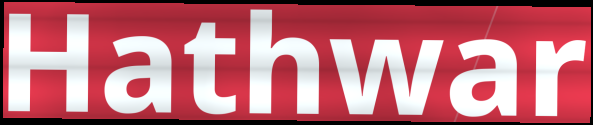
Hathwar